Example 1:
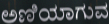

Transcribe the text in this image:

ಅಣಿಯಾಗುವ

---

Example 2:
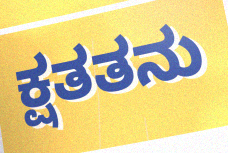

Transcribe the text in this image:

ಕ್ಷತತನು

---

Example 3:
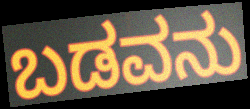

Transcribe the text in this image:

ಬಡವನು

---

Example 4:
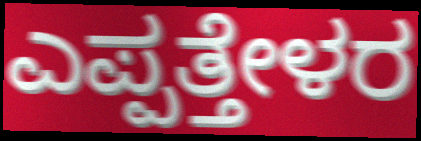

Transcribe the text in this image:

ಎಪ್ಪತ್ತೇಳರ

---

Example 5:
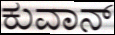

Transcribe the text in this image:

ಕುವಾನ್